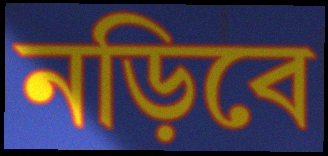
নড়িবে